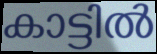
കാട്ടിൽ